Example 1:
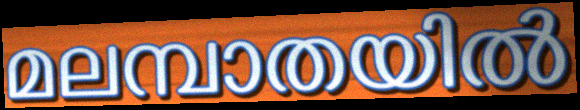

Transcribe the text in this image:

മലമ്പാതയിൽ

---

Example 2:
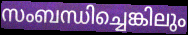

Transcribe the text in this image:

സംബന്ധിച്ചെങ്കിലും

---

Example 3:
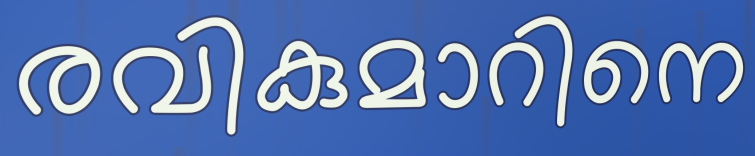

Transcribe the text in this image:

രവികുമാറിനെ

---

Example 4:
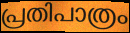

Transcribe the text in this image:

പ്രതിപാത്രം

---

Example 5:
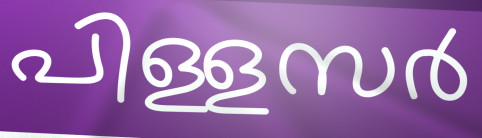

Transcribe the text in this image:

പിള്ളസർ